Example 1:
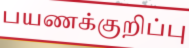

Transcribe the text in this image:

பயணக்குறிப்பு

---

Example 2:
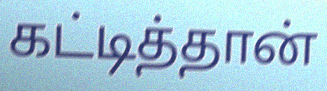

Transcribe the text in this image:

கட்டித்தான்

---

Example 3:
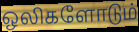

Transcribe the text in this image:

ஒலிகளோடும்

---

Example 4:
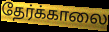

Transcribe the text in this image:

தேர்க்காலை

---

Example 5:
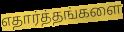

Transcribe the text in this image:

எதார்த்தங்களை